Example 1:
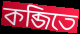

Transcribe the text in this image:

কব্জিতে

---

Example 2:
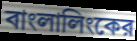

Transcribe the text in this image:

বাংলালিংকের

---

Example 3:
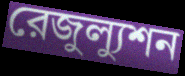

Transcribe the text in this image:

রেজুল্যুশন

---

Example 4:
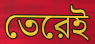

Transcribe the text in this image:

তেরেই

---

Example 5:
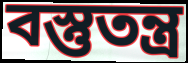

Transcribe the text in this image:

বস্তুতন্ত্র